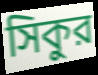
সিকুর